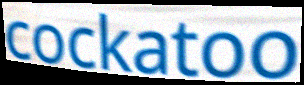
cockatoo